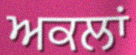
ਅਕਲਾਂ